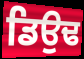
ਡਿਉਢ